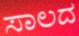
ಸಾಲದ